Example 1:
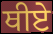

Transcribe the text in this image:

ਥੀਏ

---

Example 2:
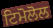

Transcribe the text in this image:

ਟਿਮੋਲੋਲ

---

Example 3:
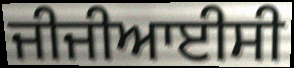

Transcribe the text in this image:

ਜੀਜੀਆਈਸੀ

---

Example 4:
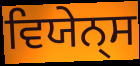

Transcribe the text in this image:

ਵਿਯੇਨ੍ਸ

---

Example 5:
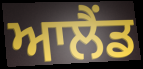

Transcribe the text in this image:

ਆਲੈਂਡ